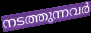
നടത്തുന്നവർ